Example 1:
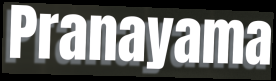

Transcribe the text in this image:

Pranayama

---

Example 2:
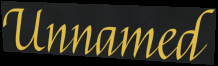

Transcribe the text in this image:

Unnamed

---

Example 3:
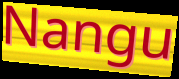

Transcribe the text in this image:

Nangu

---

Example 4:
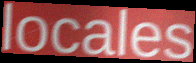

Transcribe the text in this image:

locales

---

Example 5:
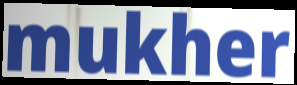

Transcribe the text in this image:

mukher